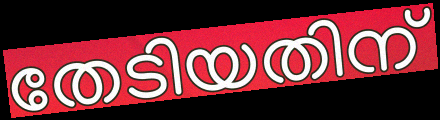
തേടിയതിന്